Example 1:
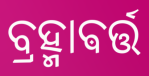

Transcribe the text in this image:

ବ୍ରହ୍ମାଵର୍ତ୍ତ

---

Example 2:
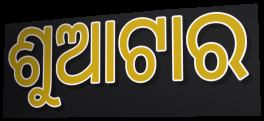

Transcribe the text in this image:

ଶୁଆଟାର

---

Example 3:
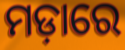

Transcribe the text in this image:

ମଡ଼ାରେ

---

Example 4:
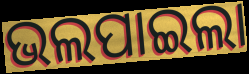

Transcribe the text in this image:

ଭଲପାଇଲା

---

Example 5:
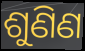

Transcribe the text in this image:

ଶୁଣିଣ